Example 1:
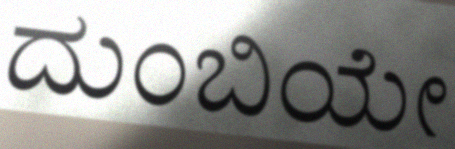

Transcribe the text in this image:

ದುಂಬಿಯೇ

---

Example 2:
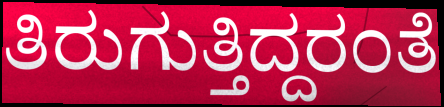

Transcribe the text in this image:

ತಿರುಗುತ್ತಿದ್ದರಂತೆ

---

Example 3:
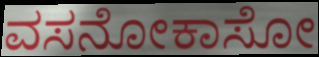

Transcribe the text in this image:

ವಸನೋಕಾಸೋ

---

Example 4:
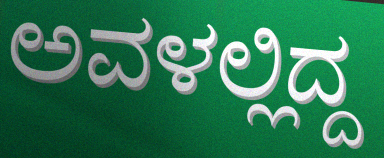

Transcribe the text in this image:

ಅವಳಲ್ಲಿದ್ದ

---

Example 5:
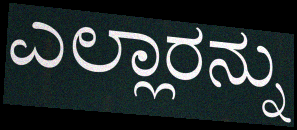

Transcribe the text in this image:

ಎಲ್ಲಾರನ್ನು